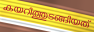
കയറിത്തുടങ്ങിയത്